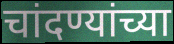
चांदण्यांच्या